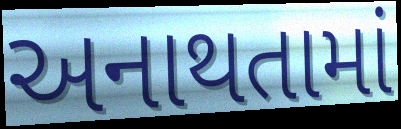
અનાથતામાં